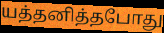
யத்தனித்தபோது